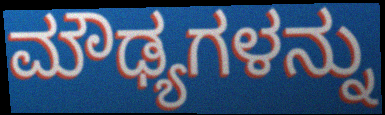
ಮೌಢ್ಯಗಳನ್ನು